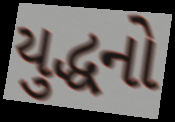
યુદ્ધનો